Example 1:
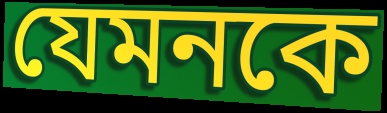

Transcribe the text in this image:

যেমনকে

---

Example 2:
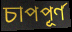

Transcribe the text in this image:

চাপপূর্ণ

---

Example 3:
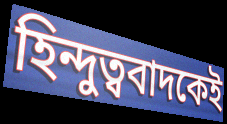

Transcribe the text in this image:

হিন্দুত্ববাদকেই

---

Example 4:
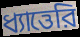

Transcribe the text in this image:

ধ্যাত্তেরি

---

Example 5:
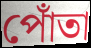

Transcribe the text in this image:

পোঁতা